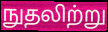
நுதலிற்று